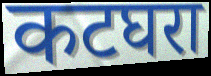
कटघरा